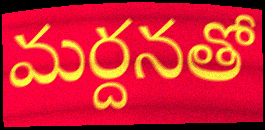
మర్దనతో